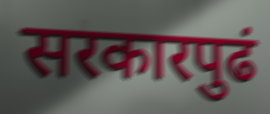
सरकारपुढं